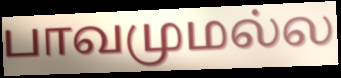
பாவமுமல்ல